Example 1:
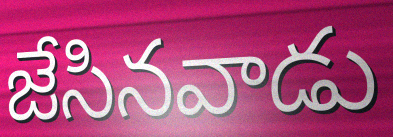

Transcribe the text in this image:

జేసినవాడు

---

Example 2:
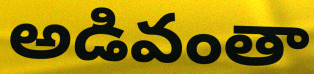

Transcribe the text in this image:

అడివంతా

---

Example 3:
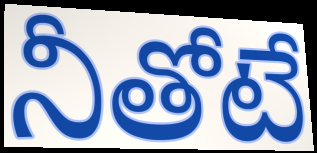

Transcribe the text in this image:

నీతోటే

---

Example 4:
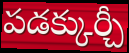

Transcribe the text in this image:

పడక్కుర్చీ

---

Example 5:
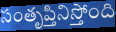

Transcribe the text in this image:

సంతృప్తినిస్తోంది